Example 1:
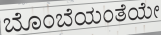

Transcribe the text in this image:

ಬೊಂಬೆಯಂತೆಯೇ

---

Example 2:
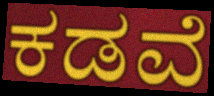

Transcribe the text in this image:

ಕಡವೆ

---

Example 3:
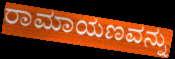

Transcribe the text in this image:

ರಾಮಾಯಣವನ್ನು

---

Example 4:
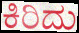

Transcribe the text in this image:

ಕಿರಿದು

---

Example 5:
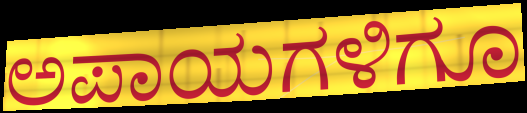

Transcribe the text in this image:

ಅಪಾಯಗಳಿಗೂ